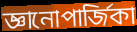
জ্ঞানোপার্জিকা